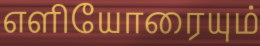
எளியோரையும்